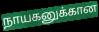
நாயகனுக்கான